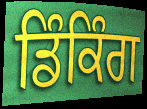
ਡਿੰਕਿੰਗ